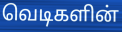
வெடிகளின்